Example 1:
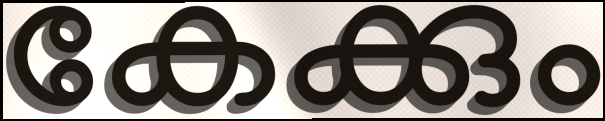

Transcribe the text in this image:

കേക്കും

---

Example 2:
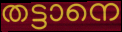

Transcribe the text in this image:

തട്ടാനെ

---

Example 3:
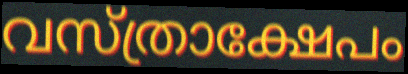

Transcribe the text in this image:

വസ്ത്രാക്ഷേപം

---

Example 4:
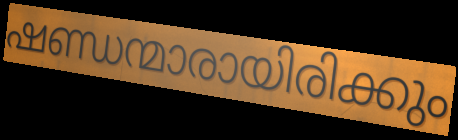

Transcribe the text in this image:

ഷണ്ഡന്മാരായിരിക്കും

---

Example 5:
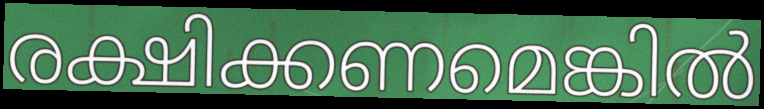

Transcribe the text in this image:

രക്ഷിക്കണമെങ്കിൽ